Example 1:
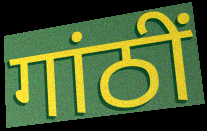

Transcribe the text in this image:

गांठीं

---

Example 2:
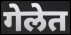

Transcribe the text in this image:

गेलेत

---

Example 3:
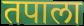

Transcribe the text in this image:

तपाला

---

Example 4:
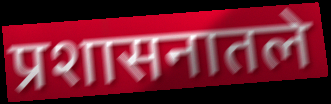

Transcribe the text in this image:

प्रशासनातले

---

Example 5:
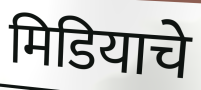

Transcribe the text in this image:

मिडियाचे